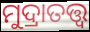
ମୁଦ୍ରାତତ୍ତ୍ବ